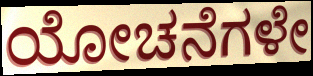
ಯೋಚನೆಗಳೇ